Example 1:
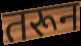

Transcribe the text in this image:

तरून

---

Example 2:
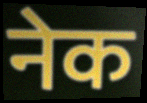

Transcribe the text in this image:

नेक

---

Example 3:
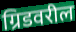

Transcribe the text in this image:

ग्रिडवरील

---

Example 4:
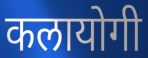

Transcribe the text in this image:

कलायोगी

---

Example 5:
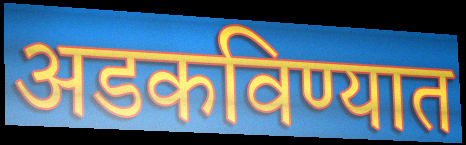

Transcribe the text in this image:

अडकविण्यात